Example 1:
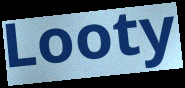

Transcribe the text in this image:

Looty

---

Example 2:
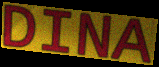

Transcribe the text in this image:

DINA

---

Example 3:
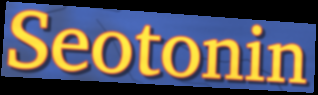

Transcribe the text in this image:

Seotonin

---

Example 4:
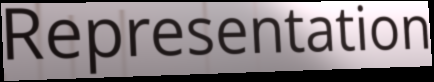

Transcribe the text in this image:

Representation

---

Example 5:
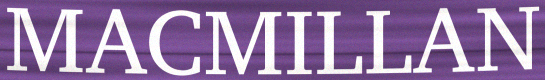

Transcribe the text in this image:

MACMILLAN